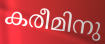
കരീമിനു